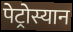
पेट्रोस्यान